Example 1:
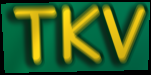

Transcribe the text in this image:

TKV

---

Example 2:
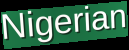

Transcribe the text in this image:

Nigerian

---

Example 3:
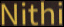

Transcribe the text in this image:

Nithi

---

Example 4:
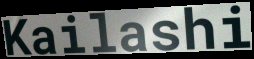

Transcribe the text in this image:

Kailashi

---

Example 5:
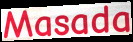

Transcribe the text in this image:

Masada